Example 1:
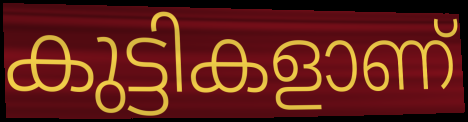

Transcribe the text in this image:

കുട്ടികളാണ്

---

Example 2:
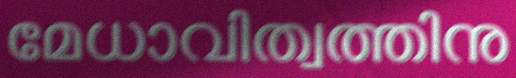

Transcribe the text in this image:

മേധാവിത്വത്തിനു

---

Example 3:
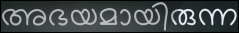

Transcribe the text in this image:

അഭയമായിരുന്ന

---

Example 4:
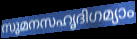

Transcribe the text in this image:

സുമനസഹൃദിഗമ്യാം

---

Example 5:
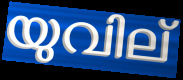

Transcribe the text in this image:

യുവില്